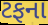
ટફના